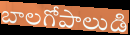
బాలగోపాలుడి